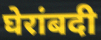
घेरांबदी